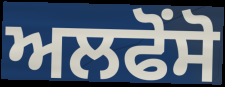
ਅਲਫੋਂਸੋ